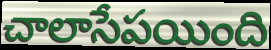
చాలాసేపయింది